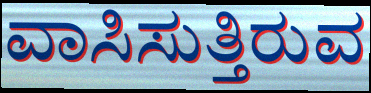
ವಾಸಿಸುತ್ತಿರುವ